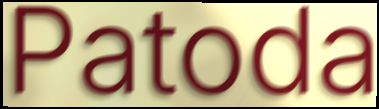
Patoda